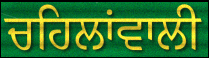
ਚਹਿਲਾਂਵਾਲੀ